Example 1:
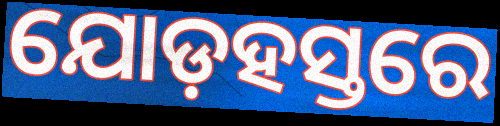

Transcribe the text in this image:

ଯୋଡ଼ହସ୍ତରେ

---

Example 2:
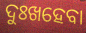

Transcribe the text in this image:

ଦୁଃଖହେବା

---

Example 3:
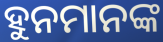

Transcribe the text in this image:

ହୁନମାନଙ୍କ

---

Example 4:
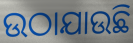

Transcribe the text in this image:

ଉଠାଯାଉଛି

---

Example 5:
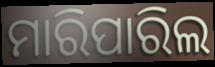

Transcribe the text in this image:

ମାରିପାରିଲ